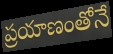
ప్రయాణంతోనే